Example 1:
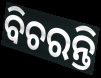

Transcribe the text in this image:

ବିଚରନ୍ତି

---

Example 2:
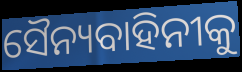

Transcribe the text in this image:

ସୈନ୍ୟବାହିନୀକୁ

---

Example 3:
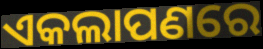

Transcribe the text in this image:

ଏକଲାପଣରେ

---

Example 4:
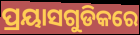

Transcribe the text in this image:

ପ୍ରୟାସଗୁଡିକରେ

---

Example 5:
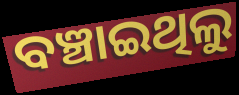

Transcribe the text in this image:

ବଞ୍ଚାଇଥିଲୁ